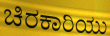
ಚಿರಕಾರಿಯು